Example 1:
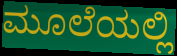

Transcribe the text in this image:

ಮೂಲೆಯಲ್ಲಿ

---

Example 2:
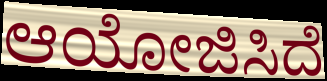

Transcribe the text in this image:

ಆಯೋಜಿಸಿದೆ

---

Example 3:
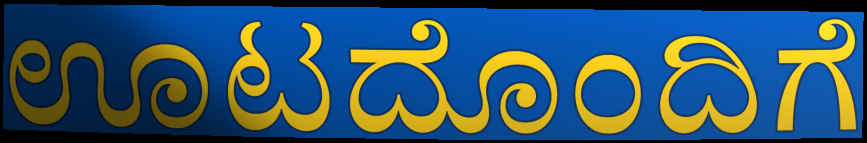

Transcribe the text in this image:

ಊಟದೊಂದಿಗೆ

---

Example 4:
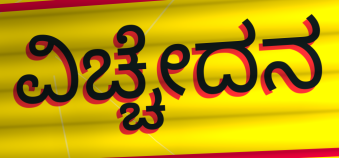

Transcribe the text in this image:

ವಿಚ್ಚೇದನ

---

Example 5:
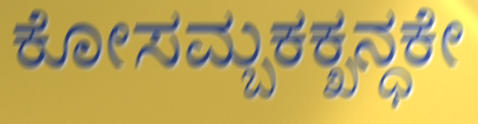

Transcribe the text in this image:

ಕೋಸಮ್ಬಕಕ್ಖನ್ಧಕೇ